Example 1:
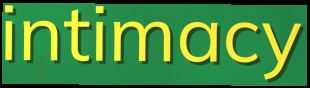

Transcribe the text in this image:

intimacy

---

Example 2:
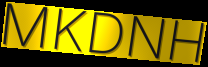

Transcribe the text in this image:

MKDNH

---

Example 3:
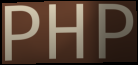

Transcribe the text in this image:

PHP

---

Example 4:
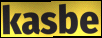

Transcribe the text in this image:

kasbe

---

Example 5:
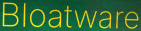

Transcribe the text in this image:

Bloatware